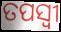
ତପସ୍ବୀ